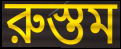
রুস্তম